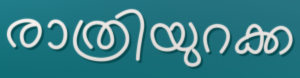
രാത്രിയുറക്ക